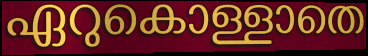
ഏറുകൊള്ളാതെ